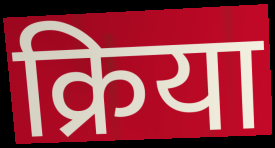
क्रिया